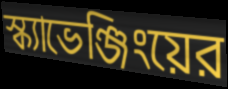
স্ক্যাভেঞ্জিংয়ের